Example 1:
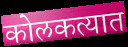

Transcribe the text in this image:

कोलकत्यात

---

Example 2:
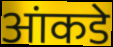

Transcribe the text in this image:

आंकडे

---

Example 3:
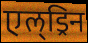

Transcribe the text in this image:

एल्ड्रिन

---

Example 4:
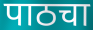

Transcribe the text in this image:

पाठचा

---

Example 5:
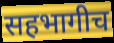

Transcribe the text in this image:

सहभागीच